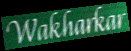
Wakharkar